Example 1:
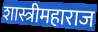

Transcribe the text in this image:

शास्त्रीमहाराज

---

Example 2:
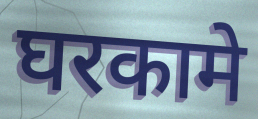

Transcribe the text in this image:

घरकामे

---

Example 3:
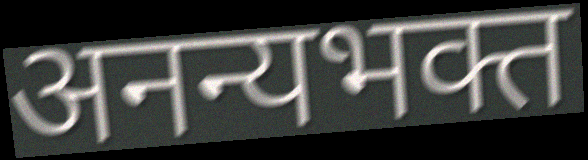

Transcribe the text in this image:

अनन्यभक्त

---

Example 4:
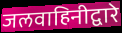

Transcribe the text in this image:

जलवाहिनीद्वारे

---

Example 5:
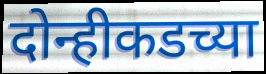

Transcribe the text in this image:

दोन्हीकडच्या